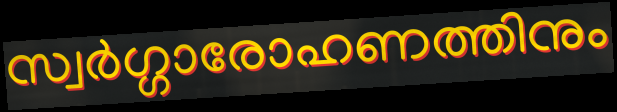
സ്വർഗ്ഗാരോഹണത്തിനും